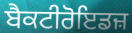
ਬੈਕਟੀਰੋਇਡਜ਼